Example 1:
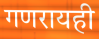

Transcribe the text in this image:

गणरायही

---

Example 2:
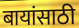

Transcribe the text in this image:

बायांसाठी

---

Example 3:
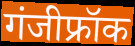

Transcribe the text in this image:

गंजीफ्रॉक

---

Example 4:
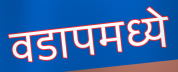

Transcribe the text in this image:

वडापमध्ये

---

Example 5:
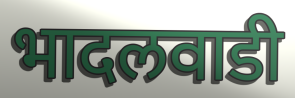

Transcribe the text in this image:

भादलवाडी